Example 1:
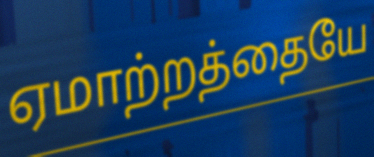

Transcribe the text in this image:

ஏமாற்றத்தையே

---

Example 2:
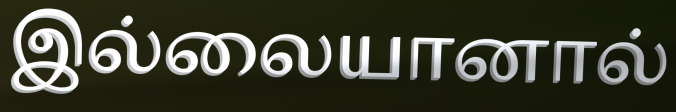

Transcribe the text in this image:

இல்லையானால்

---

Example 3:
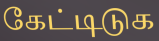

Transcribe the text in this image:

கேட்டிடுக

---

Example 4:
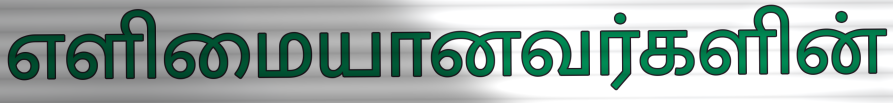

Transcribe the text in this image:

எளிமையானவர்களின்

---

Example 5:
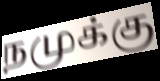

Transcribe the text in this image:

நமுக்கு